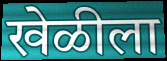
खेळीला